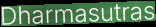
Dharmasutras